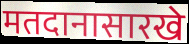
मतदानासारखे